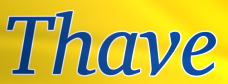
Thave